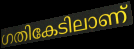
ഗതികേടിലാണ്